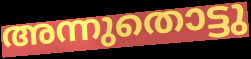
അന്നുതൊട്ടു